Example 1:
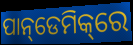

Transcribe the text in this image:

ପାନ୍‌ଡେମିକ୍‌ରେ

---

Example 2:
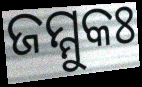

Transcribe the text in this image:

ଜମ୍ମୁକଃ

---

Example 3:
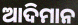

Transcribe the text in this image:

ଆଦିମାନ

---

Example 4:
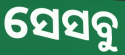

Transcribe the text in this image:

ସେସବୁ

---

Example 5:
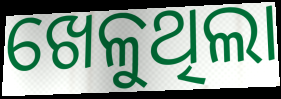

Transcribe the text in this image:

ଖେଳୁଥିଲା